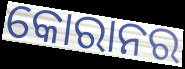
କୋରାନର